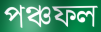
পঞ্চফল